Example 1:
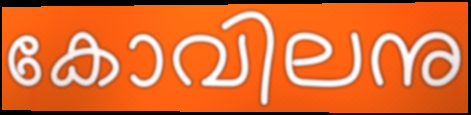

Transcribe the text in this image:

കോവിലനു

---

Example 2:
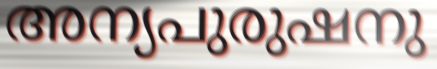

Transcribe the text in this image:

അന്യപുരുഷനു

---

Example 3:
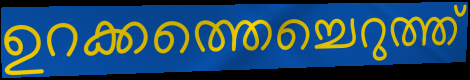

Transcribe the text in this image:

ഉറക്കത്തെച്ചെറുത്ത്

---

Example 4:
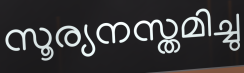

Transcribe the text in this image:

സൂര്യനസ്തമിച്ചു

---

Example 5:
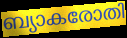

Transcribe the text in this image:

ബ്യാകരോതി